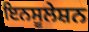
ਇਨਸੂਲੇਸ਼ਨ